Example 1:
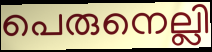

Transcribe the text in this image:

പെരുനെല്ലി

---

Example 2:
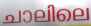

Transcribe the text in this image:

ചാലിലെ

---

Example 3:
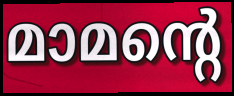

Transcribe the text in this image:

മാമന്റെ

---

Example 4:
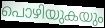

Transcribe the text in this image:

പൊഴിയുകയും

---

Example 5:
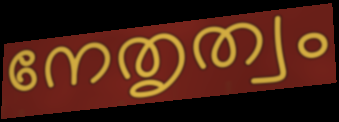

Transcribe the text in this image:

നേതൃത്വം